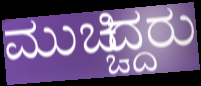
ಮುಚ್ಚಿದ್ದರು